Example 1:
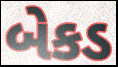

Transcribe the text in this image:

બેકડ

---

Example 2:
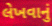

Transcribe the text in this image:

લેખવાનું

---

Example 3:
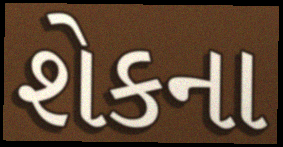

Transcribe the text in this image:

શેકના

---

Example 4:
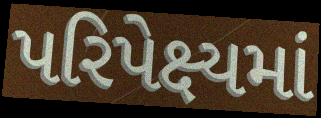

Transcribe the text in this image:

પરિપેક્ષ્યમાં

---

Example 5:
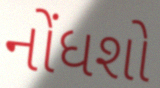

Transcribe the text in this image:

નોંધશો